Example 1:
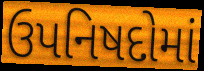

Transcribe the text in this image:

ઉપનિષદોમાં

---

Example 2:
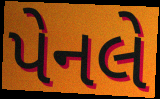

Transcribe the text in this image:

પેનલે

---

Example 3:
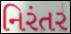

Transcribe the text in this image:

નિરંતર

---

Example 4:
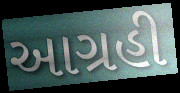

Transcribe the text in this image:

આગ્રહી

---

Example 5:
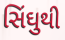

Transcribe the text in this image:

સિંઘુથી